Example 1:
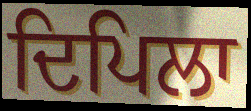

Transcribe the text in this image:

ਦਿਪਿਲਾ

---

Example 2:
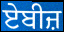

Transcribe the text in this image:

ਏਬੀਜ਼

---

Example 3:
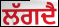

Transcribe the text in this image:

ਲੱਗਦੈ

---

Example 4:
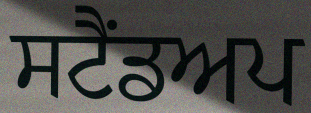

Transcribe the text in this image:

ਸਟੈਂਡਅਪ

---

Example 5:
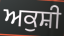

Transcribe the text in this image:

ਅਕੁਸ਼ੀ